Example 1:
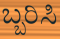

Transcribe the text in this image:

ಬ್ಬರಿಸಿ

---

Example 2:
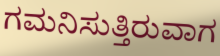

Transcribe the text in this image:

ಗಮನಿಸುತ್ತಿರುವಾಗ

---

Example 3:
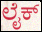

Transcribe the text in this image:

ಲೈಕ್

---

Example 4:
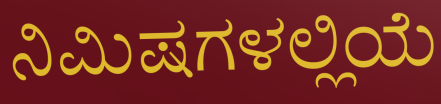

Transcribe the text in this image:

ನಿಮಿಷಗಳಲ್ಲಿಯೆ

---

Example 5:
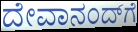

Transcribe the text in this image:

ದೇವಾನಂದ್‌ಗೆ